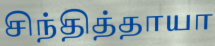
சிந்தித்தாயா